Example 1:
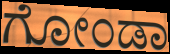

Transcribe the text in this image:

ಗೋಂಡಾ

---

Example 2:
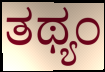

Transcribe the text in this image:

ತಥ್ಯಂ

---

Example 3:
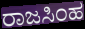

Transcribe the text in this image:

ರಾಜಸಿಂಹ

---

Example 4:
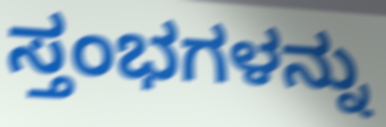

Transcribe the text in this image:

ಸ್ತಂಭಗಳನ್ನು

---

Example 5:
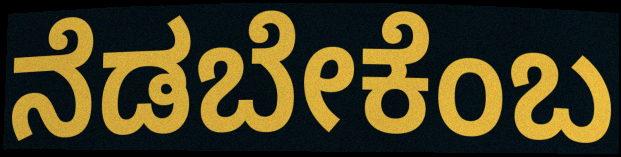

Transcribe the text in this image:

ನೆಡಬೇಕೆಂಬ